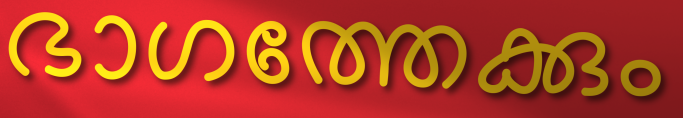
ഭാഗത്തേക്കും